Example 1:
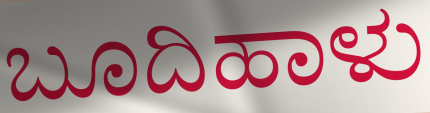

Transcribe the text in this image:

ಬೂದಿಹಾಳು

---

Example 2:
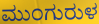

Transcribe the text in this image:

ಮುಂಗುರುಳ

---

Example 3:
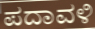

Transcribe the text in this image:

ಪದಾವಳಿ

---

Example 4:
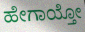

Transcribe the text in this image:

ಹೇಗಾಯ್ತೋ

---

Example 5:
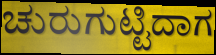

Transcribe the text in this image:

ಚುರುಗುಟ್ಟಿದಾಗ